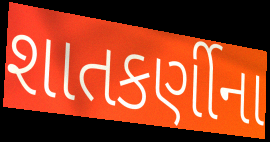
શાતકર્ણીના